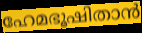
ഹേമഭൂഷിതാൻ